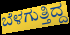
ಬೆಳಗುತ್ತಿದ್ದ